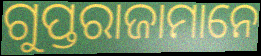
ଗୁପ୍ତରାଜାମାନେ